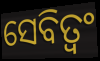
ସେବିତ୍ୱଂ